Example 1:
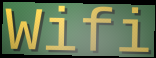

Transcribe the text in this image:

Wifi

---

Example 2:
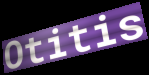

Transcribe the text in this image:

Otitis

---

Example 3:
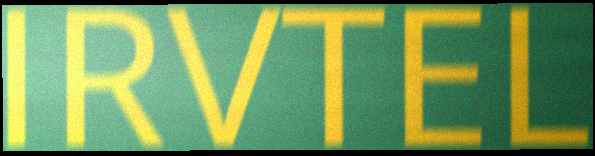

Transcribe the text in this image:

IRVTEL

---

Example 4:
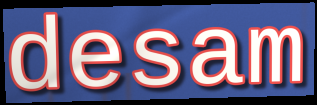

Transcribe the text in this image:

desam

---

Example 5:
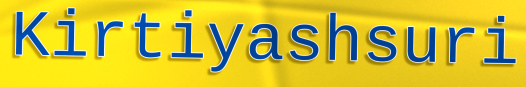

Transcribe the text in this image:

Kirtiyashsuri